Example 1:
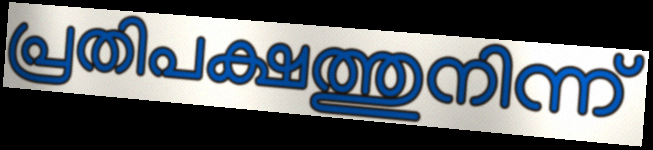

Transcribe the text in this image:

പ്രതിപക്ഷത്തുനിന്ന്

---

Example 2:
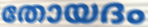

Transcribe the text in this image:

തോയദം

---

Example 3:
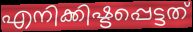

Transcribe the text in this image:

എനിക്കിഷ്ടപ്പെട്ടത്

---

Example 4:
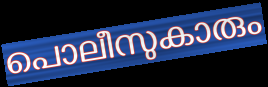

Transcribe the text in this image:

പൊലീസുകാരും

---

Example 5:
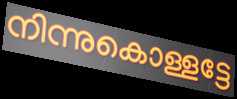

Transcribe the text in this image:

നിന്നുകൊള്ളട്ടേ